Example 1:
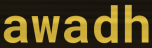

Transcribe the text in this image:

awadh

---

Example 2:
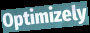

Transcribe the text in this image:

Optimizely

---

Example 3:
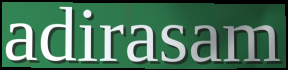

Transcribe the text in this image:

adirasam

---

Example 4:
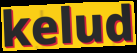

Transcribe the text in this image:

kelud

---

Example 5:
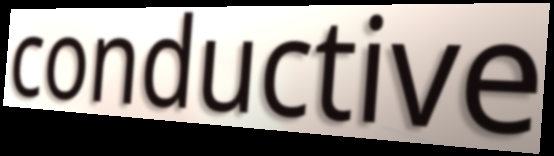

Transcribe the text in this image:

conductive